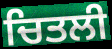
ਚਿਤਲੀ